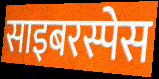
साइबरस्पेस